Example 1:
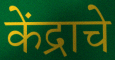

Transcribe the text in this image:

केंद्राचे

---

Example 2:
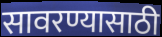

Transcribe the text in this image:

सावरण्यासाठी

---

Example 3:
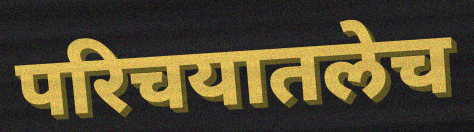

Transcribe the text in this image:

परिचयातलेच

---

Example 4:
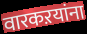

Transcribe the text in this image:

वारकऱयांना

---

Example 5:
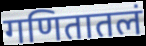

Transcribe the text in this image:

गणितातलं